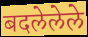
बदलेलेले